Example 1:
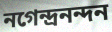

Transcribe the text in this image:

নগেন্দ্রনন্দন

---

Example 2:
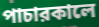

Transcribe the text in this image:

পাচারকালে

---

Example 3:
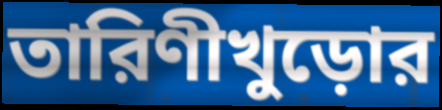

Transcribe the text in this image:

তারিণীখুড়োর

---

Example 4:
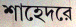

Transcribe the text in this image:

শাহেদরে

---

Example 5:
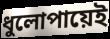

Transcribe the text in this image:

ধুলোপায়েই